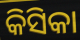
କିସିକା